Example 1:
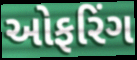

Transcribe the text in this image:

ઓફરિંગ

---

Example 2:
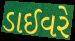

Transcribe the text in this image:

ડાઈવરે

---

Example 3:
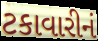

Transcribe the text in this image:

ટકાવારીનં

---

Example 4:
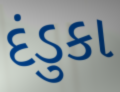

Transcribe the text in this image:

દંડુકા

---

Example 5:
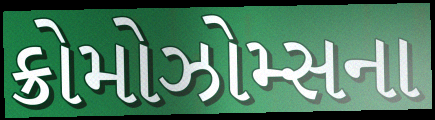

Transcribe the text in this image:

ક્રોમોઝોમ્સના